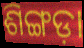
ଶିଙ୍ଗଡ଼ା